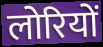
लोरियों